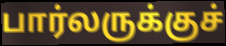
பார்லருக்குச்